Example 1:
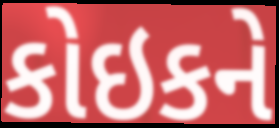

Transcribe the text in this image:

કોઇકને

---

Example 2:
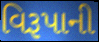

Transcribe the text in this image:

વિરૂપાની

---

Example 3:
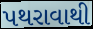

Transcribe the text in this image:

પથરાવાથી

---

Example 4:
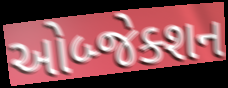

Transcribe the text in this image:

ઓબ્જેક્શન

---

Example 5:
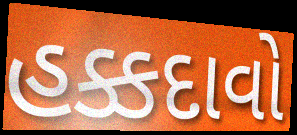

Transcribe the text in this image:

હક્કદાવો